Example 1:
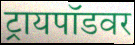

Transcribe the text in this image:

ट्रायपॉडवर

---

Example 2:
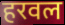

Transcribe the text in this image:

हरवल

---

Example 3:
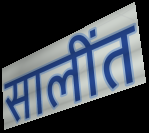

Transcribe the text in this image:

सालींत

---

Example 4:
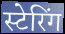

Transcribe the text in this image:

स्टेरिंग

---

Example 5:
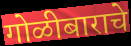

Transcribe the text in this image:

गोळीबाराचे